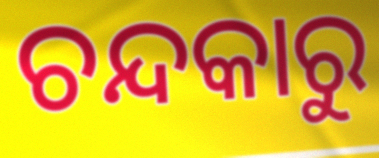
ଚନ୍ଦକାରୁ